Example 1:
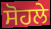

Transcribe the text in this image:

ਸੋਹਲੇ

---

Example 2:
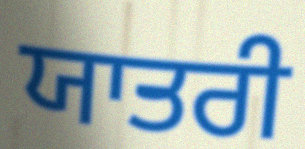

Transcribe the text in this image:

ਯਾਤਰੀ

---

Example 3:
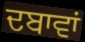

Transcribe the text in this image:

ਦਬਾਵਾਂ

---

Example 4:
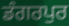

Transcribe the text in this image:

ਡੰਗਰਪੁਰ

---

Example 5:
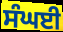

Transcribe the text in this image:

ਸੰਘਈ